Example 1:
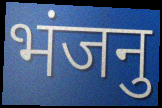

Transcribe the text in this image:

भंजनु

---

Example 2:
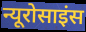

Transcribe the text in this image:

न्यूरोसाइंस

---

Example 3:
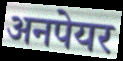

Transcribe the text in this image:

अनपेयर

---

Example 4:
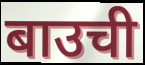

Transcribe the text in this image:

बाउची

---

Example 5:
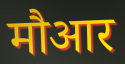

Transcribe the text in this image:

मौआर